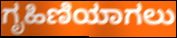
ಗೃಹಿಣಿಯಾಗಲು